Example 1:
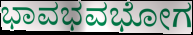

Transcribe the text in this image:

ಭಾವಭವಭೋಗ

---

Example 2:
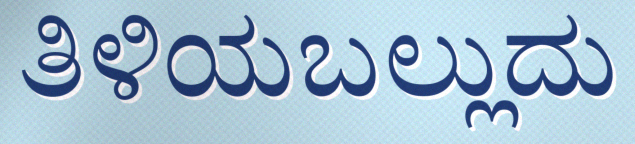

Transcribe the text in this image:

ತಿಳಿಯಬಲ್ಲುದು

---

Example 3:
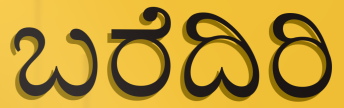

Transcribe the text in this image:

ಬರೆದಿರಿ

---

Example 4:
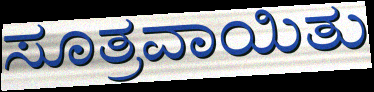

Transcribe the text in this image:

ಸೂತ್ರವಾಯಿತು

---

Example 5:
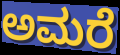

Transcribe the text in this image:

ಅಮರೆ